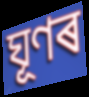
ঘূণৰ